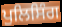
ਪੁਲਿਸਿੰਗ